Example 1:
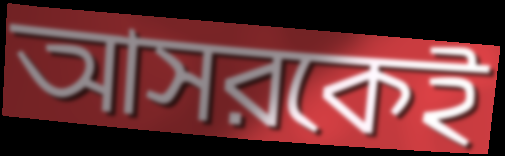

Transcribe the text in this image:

আসরকেই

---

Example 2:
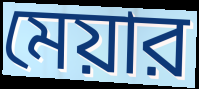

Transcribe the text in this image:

মেয়ার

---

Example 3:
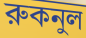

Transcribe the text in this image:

রুকনুল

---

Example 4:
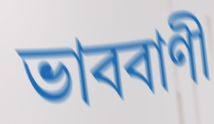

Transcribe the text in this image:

ভাববাণী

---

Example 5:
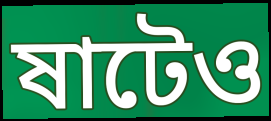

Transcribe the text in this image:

ষাটেও